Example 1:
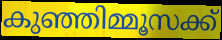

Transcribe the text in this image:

കുഞ്ഞിമ്മൂസക്ക്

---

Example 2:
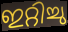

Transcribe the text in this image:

ഇറ്റിച്ചു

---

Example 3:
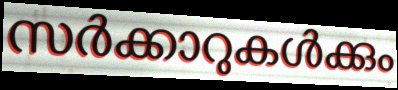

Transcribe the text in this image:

സർക്കാറുകൾക്കും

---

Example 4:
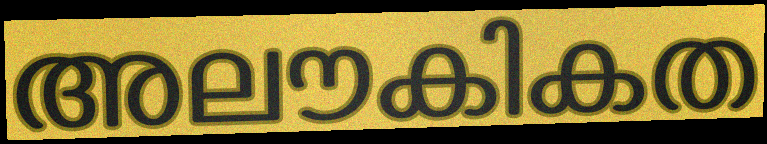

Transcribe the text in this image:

അലൗകികത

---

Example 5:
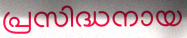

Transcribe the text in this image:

പ്രസിദ്ധനായ